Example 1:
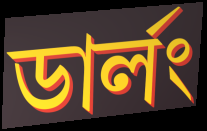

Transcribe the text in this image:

ডার্লং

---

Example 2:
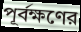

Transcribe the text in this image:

পূর্বক্ষণের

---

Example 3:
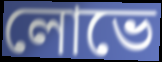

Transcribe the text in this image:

লোভে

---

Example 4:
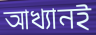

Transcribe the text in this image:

আখ্যানই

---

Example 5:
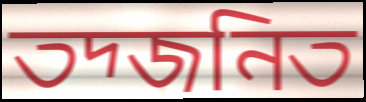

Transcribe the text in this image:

তদ্জনিত